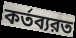
কর্তব্যরত